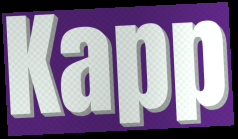
Kapp